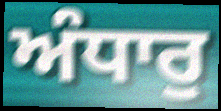
ਅੰਧਾਰੁ